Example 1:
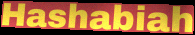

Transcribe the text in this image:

Hashabiah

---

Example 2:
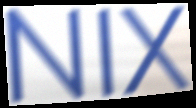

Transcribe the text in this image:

NIX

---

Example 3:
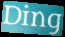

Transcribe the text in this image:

Ding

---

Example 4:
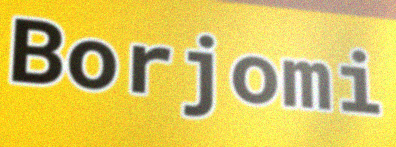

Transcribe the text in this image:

Borjomi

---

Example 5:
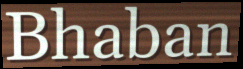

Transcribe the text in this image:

Bhaban